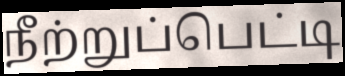
நீற்றுப்பெட்டி